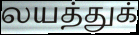
லயத்துக்